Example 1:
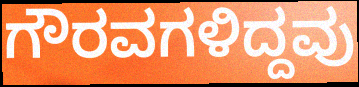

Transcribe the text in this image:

ಗೌರವಗಳಿದ್ದವು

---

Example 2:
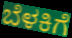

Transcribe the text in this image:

ಬೆಳಕಿಗೆ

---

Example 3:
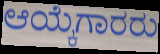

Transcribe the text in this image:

ಆಯ್ಕೆಗಾರರು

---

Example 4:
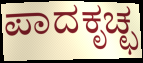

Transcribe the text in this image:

ಪಾದಕೃಚ್ಛ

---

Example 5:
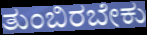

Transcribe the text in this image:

ತುಂಬಿರಬೇಕು